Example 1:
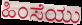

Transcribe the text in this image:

ಹಿಂಸೆಯು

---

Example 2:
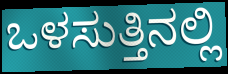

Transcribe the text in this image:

ಒಳಸುತ್ತಿನಲ್ಲಿ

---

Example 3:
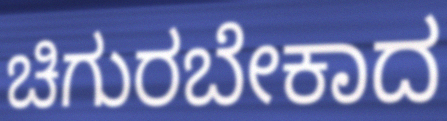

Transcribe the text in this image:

ಚಿಗುರಬೇಕಾದ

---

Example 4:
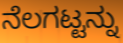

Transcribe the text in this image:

ನೆಲಗಟ್ಟನ್ನು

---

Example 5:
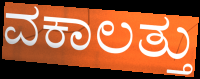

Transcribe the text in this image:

ವಕಾಲತ್ತು